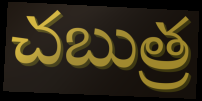
చబుత్ర